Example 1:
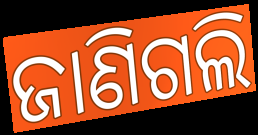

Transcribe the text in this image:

ଜାଣିଗଲି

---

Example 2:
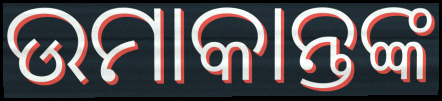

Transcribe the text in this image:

ଉମାକାନ୍ତଙ୍କ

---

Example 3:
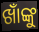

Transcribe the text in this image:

ଖାଁଙ୍କୁ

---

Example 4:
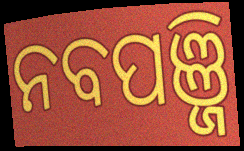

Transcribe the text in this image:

ନବପଞ୍ଜି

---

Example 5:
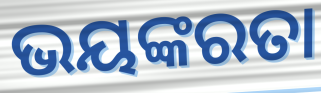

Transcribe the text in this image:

ଭୟଙ୍କରତା